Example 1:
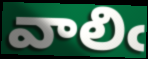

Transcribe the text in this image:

వాలిఁ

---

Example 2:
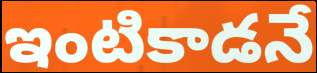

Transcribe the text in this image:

ఇంటికాడనే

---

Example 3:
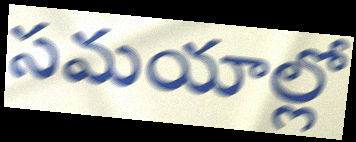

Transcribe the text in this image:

సమయాల్లో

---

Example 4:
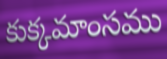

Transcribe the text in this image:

కుక్కమాంసము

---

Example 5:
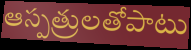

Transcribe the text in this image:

ఆస్పత్రులతోపాటు